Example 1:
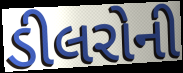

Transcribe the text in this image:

ડીલરોની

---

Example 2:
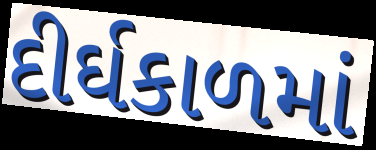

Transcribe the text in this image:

દીર્ઘકાળમાં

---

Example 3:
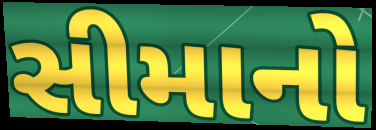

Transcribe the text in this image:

સીમાનો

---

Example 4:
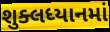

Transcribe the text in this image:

શુક્લધ્યાનમાં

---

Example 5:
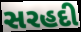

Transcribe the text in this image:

સરહદી